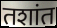
तशांत